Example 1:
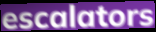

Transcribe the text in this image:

escalators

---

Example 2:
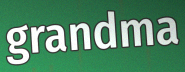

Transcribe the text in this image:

grandma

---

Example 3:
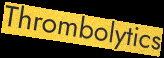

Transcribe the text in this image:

Thrombolytics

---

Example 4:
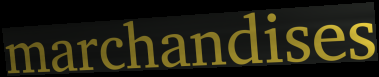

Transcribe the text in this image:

marchandises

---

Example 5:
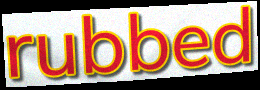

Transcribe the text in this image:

rubbed